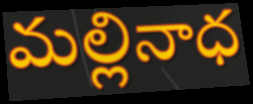
మల్లినాధ